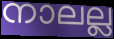
നാലല്ല